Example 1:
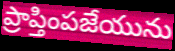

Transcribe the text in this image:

ప్రాప్తింపజేయును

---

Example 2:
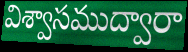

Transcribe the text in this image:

విశ్వాసముద్వారా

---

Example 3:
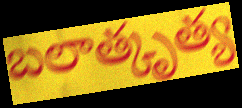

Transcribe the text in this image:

బలాత్కృత్య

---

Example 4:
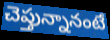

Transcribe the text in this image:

చెప్తున్నానంటే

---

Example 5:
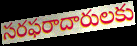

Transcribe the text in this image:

సరఫరాదారులకు